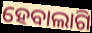
ହେବାଲାଗି